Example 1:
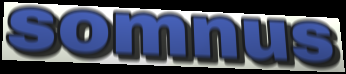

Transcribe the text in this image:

somnus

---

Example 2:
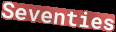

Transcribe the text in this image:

Seventies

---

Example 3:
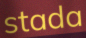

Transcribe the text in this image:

stada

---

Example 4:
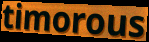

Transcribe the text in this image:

timorous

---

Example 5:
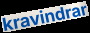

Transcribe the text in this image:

kravindrar